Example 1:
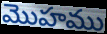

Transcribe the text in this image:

మొహము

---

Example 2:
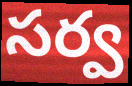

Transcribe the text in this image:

సర్వ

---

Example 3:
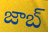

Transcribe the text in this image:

జాబ్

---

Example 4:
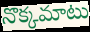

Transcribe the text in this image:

నొక్కమాటు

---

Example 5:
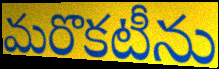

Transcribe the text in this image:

మరొకటీను